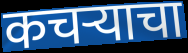
कचऱ्याचा